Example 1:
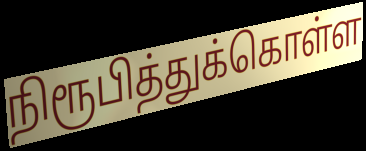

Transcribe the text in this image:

நிரூபித்துக்கொள்ள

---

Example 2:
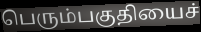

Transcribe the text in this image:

பெரும்பகுதியைச்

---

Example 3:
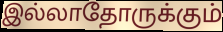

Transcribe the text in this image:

இல்லாதோருக்கும்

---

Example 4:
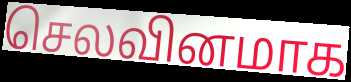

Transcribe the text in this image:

செலவினமாக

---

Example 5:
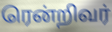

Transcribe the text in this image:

ரென்றிவர்